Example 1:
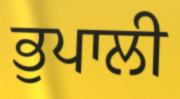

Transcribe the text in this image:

ਭੁਪਾਲੀ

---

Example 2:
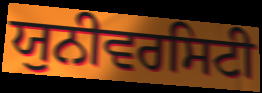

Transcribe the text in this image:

ਯੁਨੀਵਰਸਿਟੀ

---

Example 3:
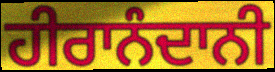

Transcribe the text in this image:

ਹੀਰਾਨੰਦਾਨੀ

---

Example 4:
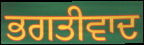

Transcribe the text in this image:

ਭਗਤੀਵਾਦ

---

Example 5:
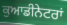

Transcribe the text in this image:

ਕੁਆਡੀਨੇਟਰਾਂ